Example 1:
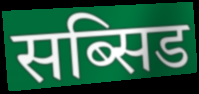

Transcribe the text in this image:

सब्सिड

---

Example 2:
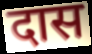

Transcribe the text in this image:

दास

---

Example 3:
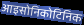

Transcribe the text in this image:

आइसोनिकोटिनिक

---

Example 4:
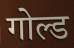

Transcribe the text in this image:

गोल्ड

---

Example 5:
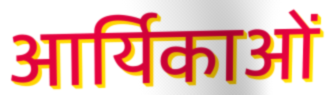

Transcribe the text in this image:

आर्यिकाओं